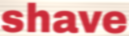
shave